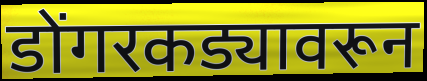
डोंगरकड्यावरून